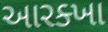
આરક્ખા